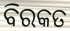
ବିରକତ